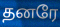
தனரே